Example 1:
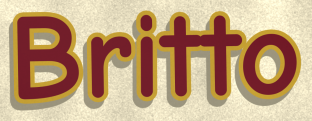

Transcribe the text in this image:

Britto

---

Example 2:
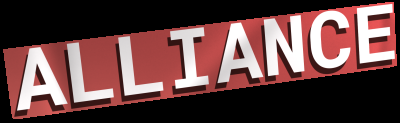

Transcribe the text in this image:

ALLIANCE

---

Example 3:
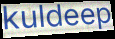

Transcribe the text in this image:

kuldeep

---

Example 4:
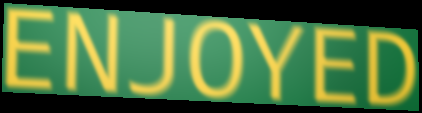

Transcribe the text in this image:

ENJOYED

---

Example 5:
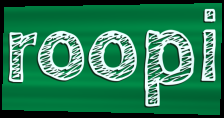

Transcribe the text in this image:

roopi